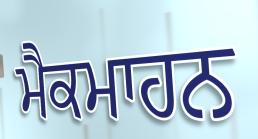
ਮੈਕਮਾਹਨ